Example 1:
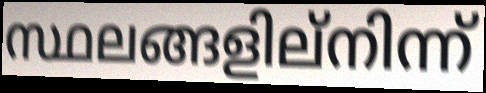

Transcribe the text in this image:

സ്ഥലങ്ങളില്നിന്ന്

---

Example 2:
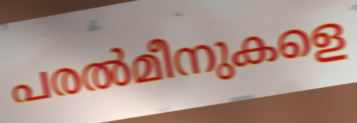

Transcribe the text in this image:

പരൽമീനുകളെ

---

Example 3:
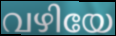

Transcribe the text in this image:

വഴിയേ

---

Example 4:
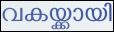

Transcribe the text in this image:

വകയ്ക്കായി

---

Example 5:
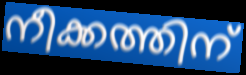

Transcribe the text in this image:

നീക്കത്തിന്